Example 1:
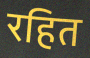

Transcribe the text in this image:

रहित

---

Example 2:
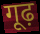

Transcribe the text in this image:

गूढ़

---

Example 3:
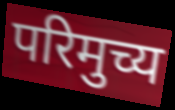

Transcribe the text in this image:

परिमुच्य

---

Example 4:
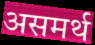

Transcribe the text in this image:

असमर्थ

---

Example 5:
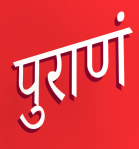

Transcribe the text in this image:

पुराणं